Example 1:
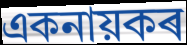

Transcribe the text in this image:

একনায়কৰ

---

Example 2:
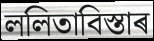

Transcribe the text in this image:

ললিতাবিস্তাৰ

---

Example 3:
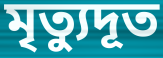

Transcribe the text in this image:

মৃত্যুদূত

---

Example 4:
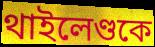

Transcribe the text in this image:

থাইলেণ্ডকে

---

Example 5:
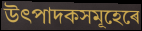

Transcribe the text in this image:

উৎপাদকসমূহেৰে